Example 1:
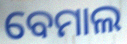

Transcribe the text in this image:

ବେମାଲ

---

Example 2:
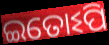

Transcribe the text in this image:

ଇତୋଽପି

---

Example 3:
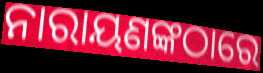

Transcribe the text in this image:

ନାରାୟଣଙ୍କଠାରେ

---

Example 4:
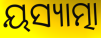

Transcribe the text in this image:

ୟସ୍ୟାତ୍ମା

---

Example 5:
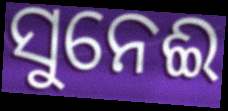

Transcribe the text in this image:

ସୁନେଈ